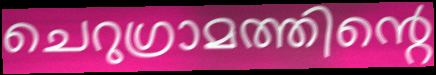
ചെറുഗ്രാമത്തിന്റെ